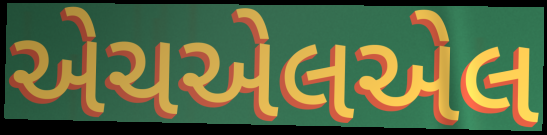
એચએલએલ